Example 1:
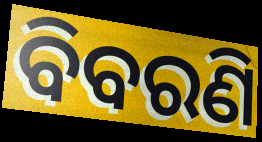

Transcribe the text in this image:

ବିବରଣି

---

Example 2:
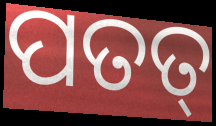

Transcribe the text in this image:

ପତତ୍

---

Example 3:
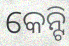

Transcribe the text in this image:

କେନ୍ଟି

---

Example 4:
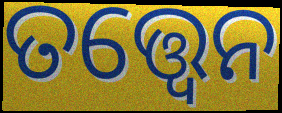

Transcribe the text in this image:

ତତ୍ତ୍ଵେନ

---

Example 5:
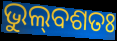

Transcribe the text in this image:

ଭୁଲ୍‌ବଶତଃ